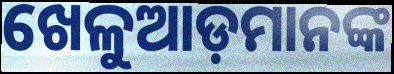
ଖେଳୁଆଡ଼ମାନଙ୍କ